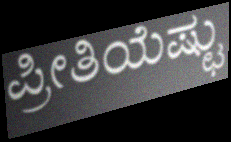
ಪ್ರೀತಿಯೆಷ್ಟು